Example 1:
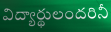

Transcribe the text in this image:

విద్యార్థులందరినీ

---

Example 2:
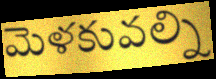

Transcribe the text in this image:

మెళకువల్ని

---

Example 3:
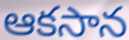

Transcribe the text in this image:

ఆకసాన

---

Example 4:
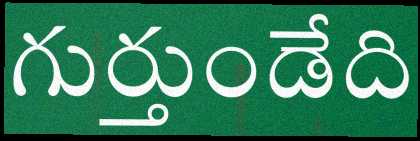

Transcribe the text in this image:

గుర్తుండేది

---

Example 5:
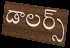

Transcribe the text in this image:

డాలర్స్